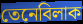
তেনেবিলাক